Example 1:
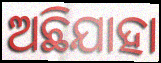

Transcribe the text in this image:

ଅଛିଯାହା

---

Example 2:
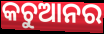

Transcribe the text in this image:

କଚୁଆନର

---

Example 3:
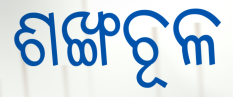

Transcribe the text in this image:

ଶଙ୍ଖଚୂଳ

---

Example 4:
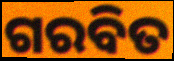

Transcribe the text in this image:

ଗରବିତ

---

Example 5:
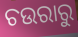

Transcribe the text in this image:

ଚଉରାରୁ